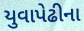
યુવાપેઢીના